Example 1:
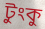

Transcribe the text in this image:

টুংকু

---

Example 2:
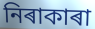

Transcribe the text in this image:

নিৰাকাৰা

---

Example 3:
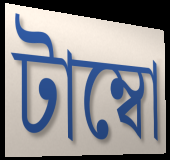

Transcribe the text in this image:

টাম্বো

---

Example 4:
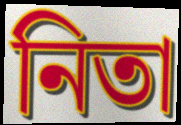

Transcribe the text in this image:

নিতা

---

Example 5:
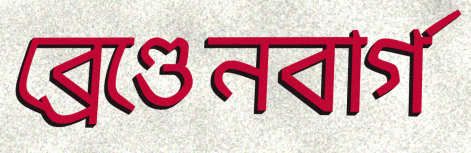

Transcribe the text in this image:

ব্ৰেণ্ডেনবাৰ্গ